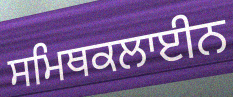
ਸਮਿਥਕਲਾਈਨ